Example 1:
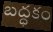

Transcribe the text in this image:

బద్ధకం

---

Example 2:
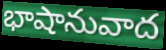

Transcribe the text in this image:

భాషానువాద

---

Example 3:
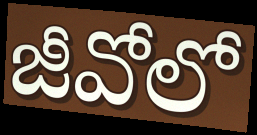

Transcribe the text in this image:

జీవోలో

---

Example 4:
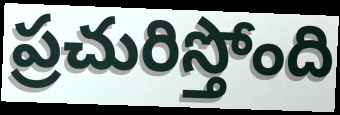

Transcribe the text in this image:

ప్రచురిస్తోంది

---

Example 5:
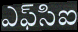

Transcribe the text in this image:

ఎఫ్‌సిఐ